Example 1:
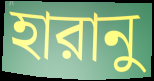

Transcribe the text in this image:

হারানু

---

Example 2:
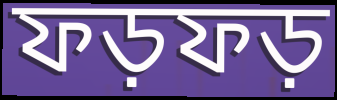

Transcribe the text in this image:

ফড়ফড়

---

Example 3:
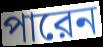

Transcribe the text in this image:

পারেন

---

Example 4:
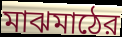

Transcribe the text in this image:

মাঝমাঠের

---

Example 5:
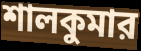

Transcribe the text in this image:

শালকুমার